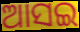
ଆସଇ